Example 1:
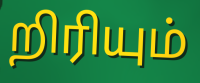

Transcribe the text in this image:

றிரியும்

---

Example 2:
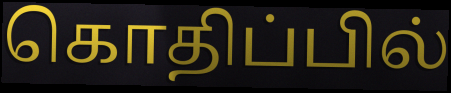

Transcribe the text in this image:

கொதிப்பில்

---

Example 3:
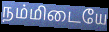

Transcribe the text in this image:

நம்மிடையே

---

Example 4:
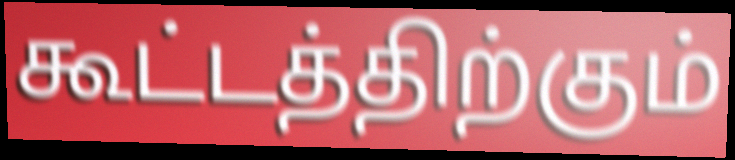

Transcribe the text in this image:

கூட்டத்திற்கும்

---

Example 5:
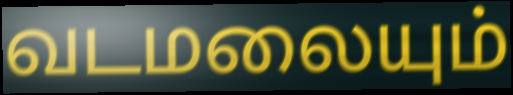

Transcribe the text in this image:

வடமலையும்